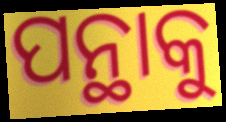
ପନ୍ଥାକୁ